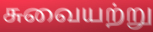
சுவையற்று